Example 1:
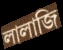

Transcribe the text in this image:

লালাজি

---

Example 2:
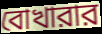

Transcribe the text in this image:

বোখারার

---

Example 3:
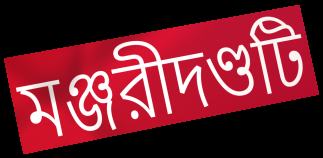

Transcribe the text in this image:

মঞ্জরীদণ্ডটি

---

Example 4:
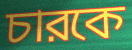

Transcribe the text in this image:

চারকে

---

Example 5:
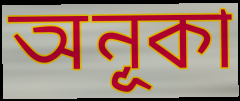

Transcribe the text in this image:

অনূকা